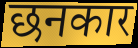
छनकार